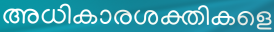
അധികാരശക്തികളെ